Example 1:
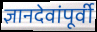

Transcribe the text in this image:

ज्ञानदेवांपूर्वी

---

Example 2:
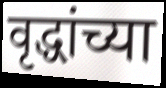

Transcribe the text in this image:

वृद्धांच्या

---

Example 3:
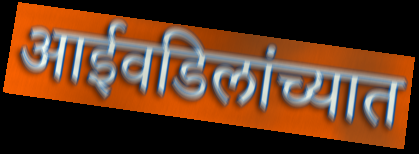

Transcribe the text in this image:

आईवडिलांच्यात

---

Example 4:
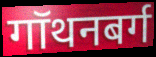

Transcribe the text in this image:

गॉथनबर्ग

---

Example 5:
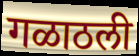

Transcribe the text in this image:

गळाठली